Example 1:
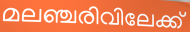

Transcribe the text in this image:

മലഞ്ചരിവിലേക്ക്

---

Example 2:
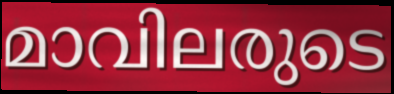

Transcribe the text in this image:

മാവിലരുടെ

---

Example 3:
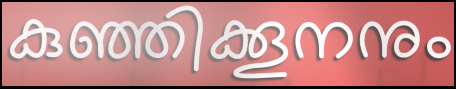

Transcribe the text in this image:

കുഞ്ഞിക്കൂനനും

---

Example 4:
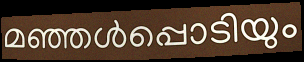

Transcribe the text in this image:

മഞ്ഞൾപ്പൊടിയും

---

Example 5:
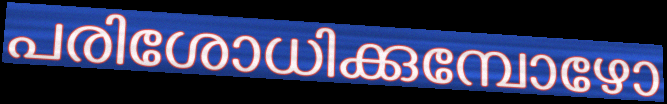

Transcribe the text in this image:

പരിശോധിക്കുമ്പോഴോ